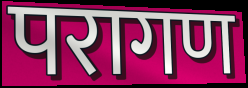
परागण